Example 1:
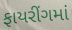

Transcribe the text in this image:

ફાયરીંગમાં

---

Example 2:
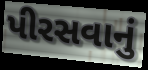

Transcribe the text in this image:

પીરસવાનું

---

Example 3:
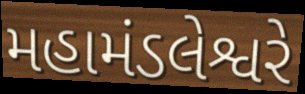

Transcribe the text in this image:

મહામંડલેશ્વરે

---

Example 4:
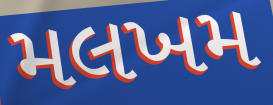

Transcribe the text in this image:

મલખમ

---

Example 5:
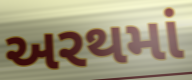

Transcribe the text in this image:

અરથમાં